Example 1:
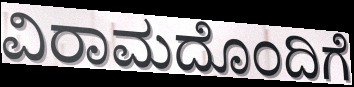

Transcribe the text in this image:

ವಿರಾಮದೊಂದಿಗೆ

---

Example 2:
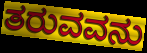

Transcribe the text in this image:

ತರುವವನು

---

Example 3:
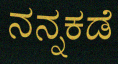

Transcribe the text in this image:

ನನ್ನಕಡೆ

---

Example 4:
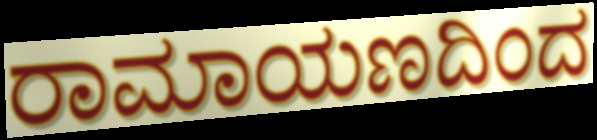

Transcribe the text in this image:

ರಾಮಾಯಣದಿಂದ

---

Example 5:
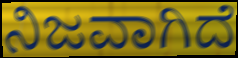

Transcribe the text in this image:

ನಿಜವಾಗಿದೆ